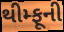
થીમ્ફૂની